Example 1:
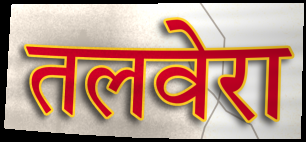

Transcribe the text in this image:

तलवेरा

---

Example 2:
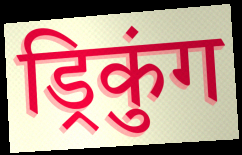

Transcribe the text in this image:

ड्रिकुंग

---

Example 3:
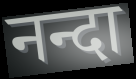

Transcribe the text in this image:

नन्दा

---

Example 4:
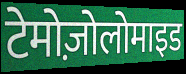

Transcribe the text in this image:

टेमोज़ोलोमाइड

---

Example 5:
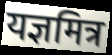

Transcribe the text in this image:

यज्ञमित्र